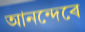
আনন্দেৰে